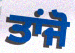
ਤਾਂਜੋ